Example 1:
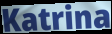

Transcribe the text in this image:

Katrina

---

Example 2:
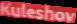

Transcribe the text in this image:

Kuleshov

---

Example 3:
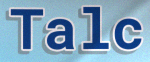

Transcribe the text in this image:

Talc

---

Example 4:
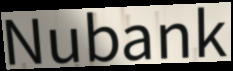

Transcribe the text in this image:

Nubank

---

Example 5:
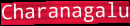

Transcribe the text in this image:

Charanagalu